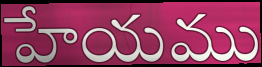
హేయము